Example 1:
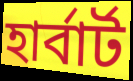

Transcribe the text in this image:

হাৰ্বাৰ্ট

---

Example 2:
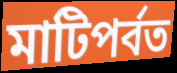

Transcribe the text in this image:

মাটিপৰ্বত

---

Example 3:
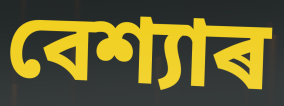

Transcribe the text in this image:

বেশ্যাৰ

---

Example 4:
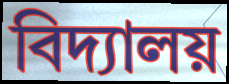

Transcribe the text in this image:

বিদ্যালয়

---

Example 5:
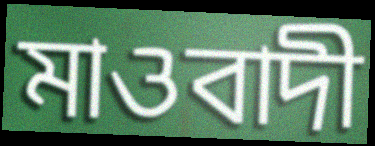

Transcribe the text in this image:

মাওবাদী